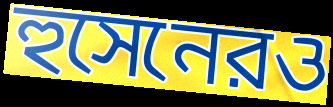
হুসেনেরও